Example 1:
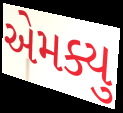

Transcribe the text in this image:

એમક્યુ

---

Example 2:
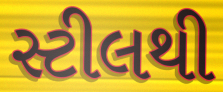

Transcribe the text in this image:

સ્ટીલથી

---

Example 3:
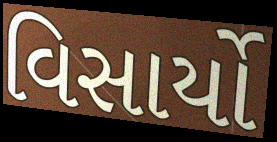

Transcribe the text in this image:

વિસાર્યો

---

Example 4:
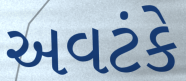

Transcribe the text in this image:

અવટંકે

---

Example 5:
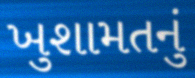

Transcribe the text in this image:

ખુશામતનું